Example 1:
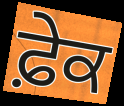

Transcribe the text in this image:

ਫ਼ੇਕ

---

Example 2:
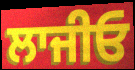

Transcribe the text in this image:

ਲਾਜੀਓ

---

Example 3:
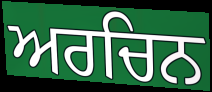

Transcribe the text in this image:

ਅਰਚਿਨ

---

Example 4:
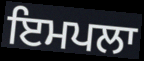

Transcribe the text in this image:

ਇਮਪਲਾ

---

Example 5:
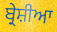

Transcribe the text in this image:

ਬ੍ਰੇਸ਼ੀਆ